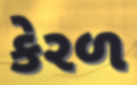
કેરળ